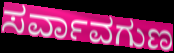
ಸರ್ವಾವಗುಣ